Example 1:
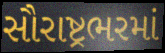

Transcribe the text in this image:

સૌરાષ્ટ્રભરમાં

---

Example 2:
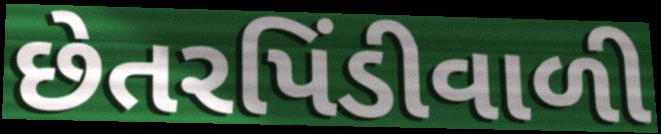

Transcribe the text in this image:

છેતરપિંડીવાળી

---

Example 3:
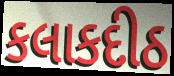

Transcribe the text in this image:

કલાકદીઠ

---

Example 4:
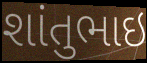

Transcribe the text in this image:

શાંતુભાઇ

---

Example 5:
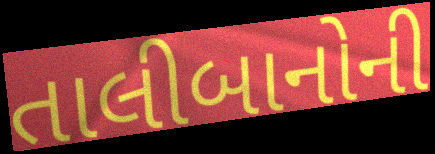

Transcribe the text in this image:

તાલીબાનોની